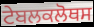
ਟੇਬਲਕਲੋਥਸ